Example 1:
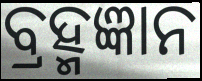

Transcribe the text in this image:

ବ୍ରହ୍ମଜ୍ଞାନ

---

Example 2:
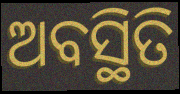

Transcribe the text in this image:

ଅବସ୍ଥିତି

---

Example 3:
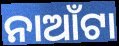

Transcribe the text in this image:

ନାଆଁଟା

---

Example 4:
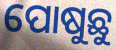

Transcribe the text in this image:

ପୋଷୁଛୁ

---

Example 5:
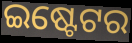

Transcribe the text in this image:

ଇଷ୍ଟେଟର